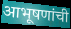
आभूषणांची